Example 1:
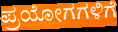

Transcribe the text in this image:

ಪ್ರಯೋಗಗಳಿಗೆ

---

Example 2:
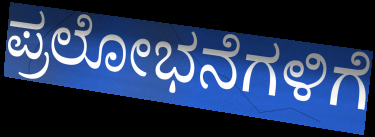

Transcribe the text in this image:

ಪ್ರಲೋಭನೆಗಳಿಗೆ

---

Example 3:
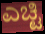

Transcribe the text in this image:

ಎಚ್ಟಿ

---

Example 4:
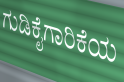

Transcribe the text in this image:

ಗುಡಿಕೈಗಾರಿಕೆಯ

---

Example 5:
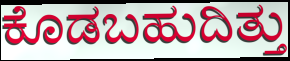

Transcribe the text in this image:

ಕೊಡಬಹುದಿತ್ತು